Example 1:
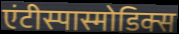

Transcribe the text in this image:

एंटीस्पास्मोडिक्स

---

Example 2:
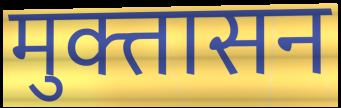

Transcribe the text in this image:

मुक्तासन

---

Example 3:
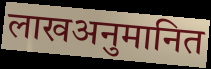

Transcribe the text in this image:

लाखअनुमानित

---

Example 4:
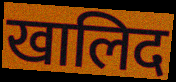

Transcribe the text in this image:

खालिद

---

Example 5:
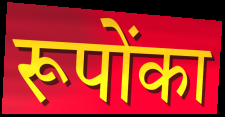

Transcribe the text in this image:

रूपोंका